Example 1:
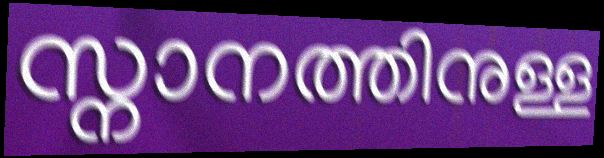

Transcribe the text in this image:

സ്നാനത്തിനുള്ള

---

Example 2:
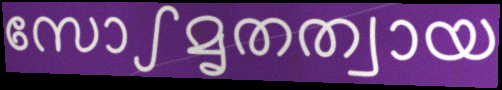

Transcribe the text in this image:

സോഽമൃതത്വായ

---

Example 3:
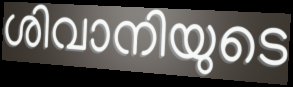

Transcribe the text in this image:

ശിവാനിയുടെ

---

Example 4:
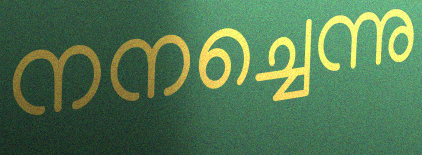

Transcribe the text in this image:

നനച്ചെന്നു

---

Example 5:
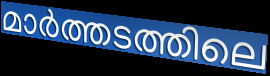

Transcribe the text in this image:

മാർത്തടത്തിലെ